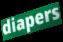
diapers